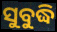
ସୁବୁଦ୍ଧି